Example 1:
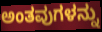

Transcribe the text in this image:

ಅಂತವುಗಳನ್ನು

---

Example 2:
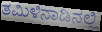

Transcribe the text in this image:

ತಮಿಳಿನಾಡಿನಲ್ಲಿ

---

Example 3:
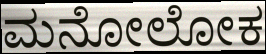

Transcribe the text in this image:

ಮನೋಲೋಕ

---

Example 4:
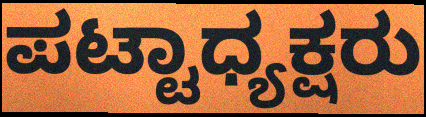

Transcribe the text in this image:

ಪಟ್ಟಾಧ್ಯಕ್ಷರು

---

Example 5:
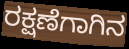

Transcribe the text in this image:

ರಕ್ಷಣೆಗಾಗಿನ